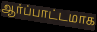
ஆர்ப்பாட்டமாக